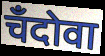
चँदोवा